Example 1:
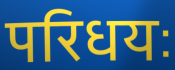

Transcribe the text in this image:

परिधयः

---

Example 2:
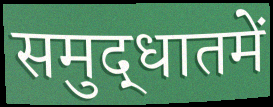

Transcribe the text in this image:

समुद्धातमें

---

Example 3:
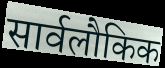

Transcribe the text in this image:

सार्वलौकिक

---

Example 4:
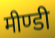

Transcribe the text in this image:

मीण्‍डी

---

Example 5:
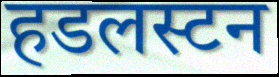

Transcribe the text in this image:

हडलस्टन